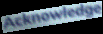
Acknowledge